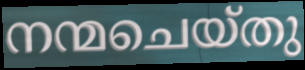
നന്മചെയ്തു